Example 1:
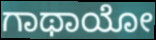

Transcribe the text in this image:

ಗಾಥಾಯೋ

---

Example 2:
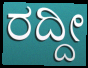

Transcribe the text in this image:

ರದ್ದೀ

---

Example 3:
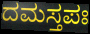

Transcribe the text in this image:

ದಮಸ್ತಪಃ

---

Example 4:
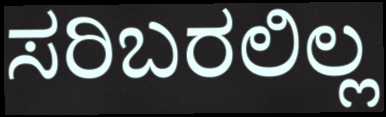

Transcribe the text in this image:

ಸರಿಬರಲಿಲ್ಲ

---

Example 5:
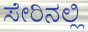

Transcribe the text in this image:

ಸೇರಿನಲ್ಲಿ